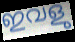
ഇവളു